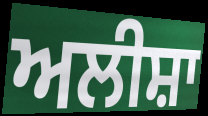
ਅਲੀਸ਼ਾ